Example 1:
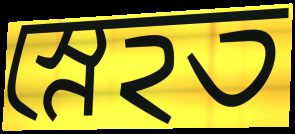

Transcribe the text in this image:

স্নেহত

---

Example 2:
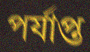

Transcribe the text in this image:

পৰ্যাপ্ত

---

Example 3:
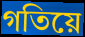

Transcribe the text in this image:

গতিয়ে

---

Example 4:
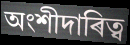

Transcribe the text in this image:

অংশীদাৰিত্ব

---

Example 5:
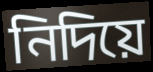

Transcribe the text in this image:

নিদিয়ে